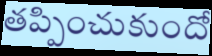
తప్పించుకుందో